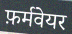
फ़र्मवेयर